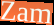
Zam